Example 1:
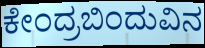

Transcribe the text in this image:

ಕೇಂದ್ರಬಿಂದುವಿನ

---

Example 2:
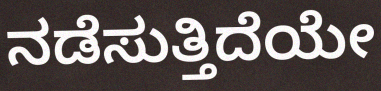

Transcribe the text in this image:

ನಡೆಸುತ್ತಿದೆಯೇ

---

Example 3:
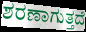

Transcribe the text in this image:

ಶರಣಾಗುತ್ತದೆ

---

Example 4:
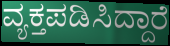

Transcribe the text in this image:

ವ್ಯಕ್ತಪಡಿಸಿದ್ದಾರೆ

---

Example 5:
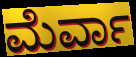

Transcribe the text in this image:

ಮೆರ್ವಾ